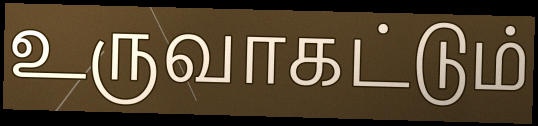
உருவாகட்டும்